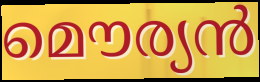
മൌര്യൻ